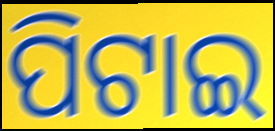
ପିଟାଇ